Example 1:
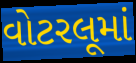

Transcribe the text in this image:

વોટરલૂમાં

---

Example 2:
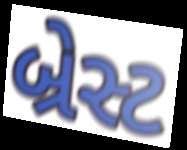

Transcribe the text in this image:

બ્રેસ્ટ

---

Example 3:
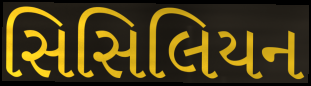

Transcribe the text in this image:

સિસિલિયન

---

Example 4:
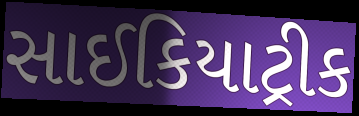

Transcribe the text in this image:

સાઈકિયાટ્રીક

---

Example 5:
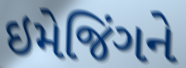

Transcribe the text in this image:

ઇમેજિંગને